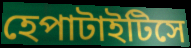
হেপাটাইটিসে